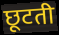
छूटती